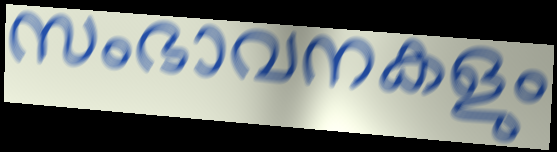
സംഭാവനകളും